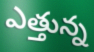
ఎత్తున్న